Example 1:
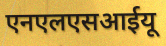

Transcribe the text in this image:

एनएलएसआईयू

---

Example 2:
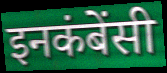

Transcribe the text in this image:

इनकंबेंसी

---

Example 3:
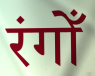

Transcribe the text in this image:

रंगोँ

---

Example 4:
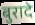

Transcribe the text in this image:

बुरादे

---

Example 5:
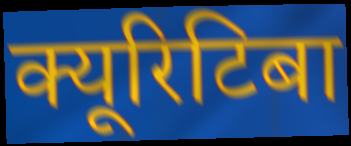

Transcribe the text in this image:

क्यूरिटिबा